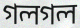
গলগল